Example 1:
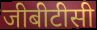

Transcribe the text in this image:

जीबीटीसी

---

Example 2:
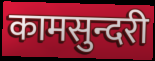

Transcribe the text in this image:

कामसुन्दरी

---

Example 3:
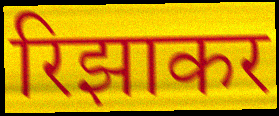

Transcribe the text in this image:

रिझाकर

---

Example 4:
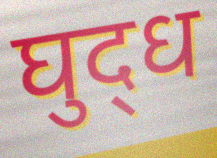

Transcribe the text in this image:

घुद्ध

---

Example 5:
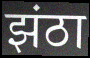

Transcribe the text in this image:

झंठा